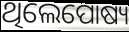
ଥିଲେପୋଷ୍ୟ